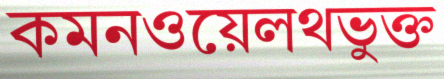
কমনওয়েলথভুক্ত